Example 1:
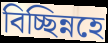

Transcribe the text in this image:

বিচ্ছিন্নহে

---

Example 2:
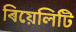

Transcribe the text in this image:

ৰিয়েলিটি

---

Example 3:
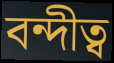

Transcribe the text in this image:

বন্দীত্ব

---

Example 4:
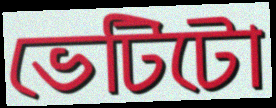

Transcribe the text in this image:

ভেটিটো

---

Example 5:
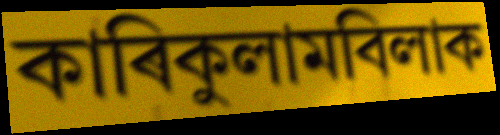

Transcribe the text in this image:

কাৰিকুলামবিলাক